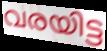
വരയിട്ട